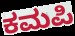
ಕಮಪಿ